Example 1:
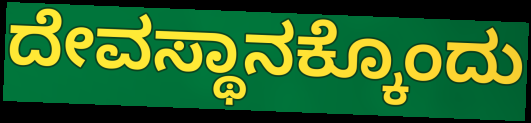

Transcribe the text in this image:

ದೇವಸ್ಥಾನಕ್ಕೊಂದು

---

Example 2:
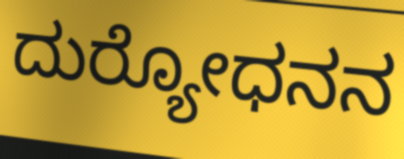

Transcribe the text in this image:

ದುರ‍್ಯೋಧನನ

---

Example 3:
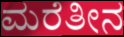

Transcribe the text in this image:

ಮರೆತೀನ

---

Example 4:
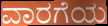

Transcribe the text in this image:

ವಾರಗೆಯ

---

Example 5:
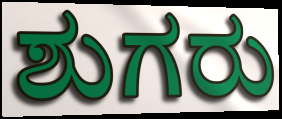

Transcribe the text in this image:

ಶುಗರು